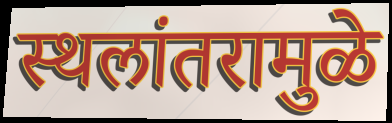
स्थलांतरामुळे